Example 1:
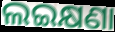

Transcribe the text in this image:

ଲଇକ୍ଷଣା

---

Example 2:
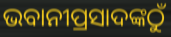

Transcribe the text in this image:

ଭବାନୀପ୍ରସାଦଙ୍କଠୁଁ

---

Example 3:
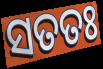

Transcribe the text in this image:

ସତତଃ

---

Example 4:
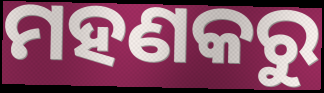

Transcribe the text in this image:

ମହଣକରୁ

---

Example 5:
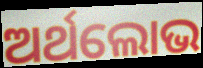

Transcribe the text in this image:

ଅର୍ଥଲୋଭ